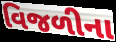
વિજળીના